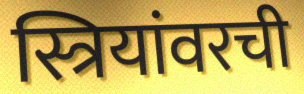
स्त्रियांवरची